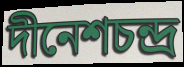
দীনেশচন্দ্র